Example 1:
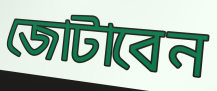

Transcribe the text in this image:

জোটাবেন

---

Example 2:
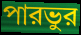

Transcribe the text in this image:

পারভুর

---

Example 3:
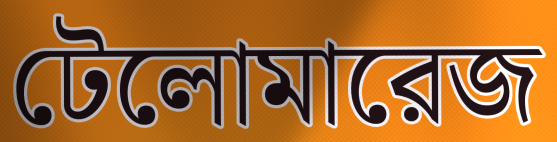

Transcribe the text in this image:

টেলোমারেজ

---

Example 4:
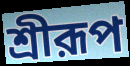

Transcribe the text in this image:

শ্রীরূপ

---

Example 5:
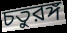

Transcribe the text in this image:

চতুরঙ্গ